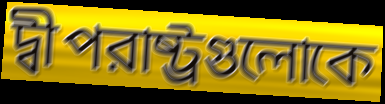
দ্বীপরাষ্ট্রগুলোকে